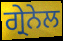
ਗ੍ਰੇਨੇਲ